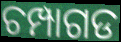
ଚମ୍ପାଗଡ